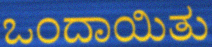
ಒಂದಾಯಿತು